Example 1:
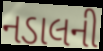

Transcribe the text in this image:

નડાલની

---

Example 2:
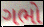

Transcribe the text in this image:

ગભો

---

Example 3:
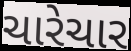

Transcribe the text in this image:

ચારેચાર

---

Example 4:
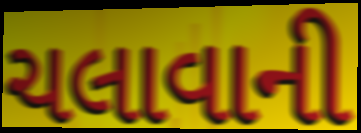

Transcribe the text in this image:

ચલાવાની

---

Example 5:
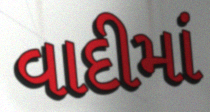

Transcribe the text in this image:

વાદીમાં